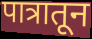
पात्रातून